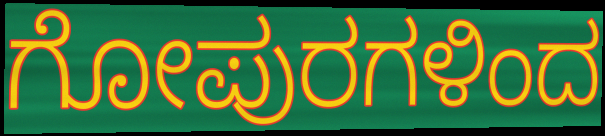
ಗೋಪುರಗಳಿಂದ